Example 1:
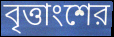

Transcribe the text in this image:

বৃত্তাংশের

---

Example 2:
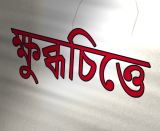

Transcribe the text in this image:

ক্ষুব্ধচিত্তে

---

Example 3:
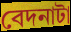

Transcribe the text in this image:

বেদনাটা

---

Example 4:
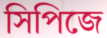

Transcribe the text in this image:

সিপিজে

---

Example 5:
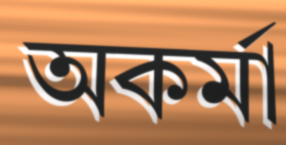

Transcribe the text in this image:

অকর্মা